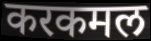
करकमल